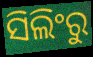
ସିଲିଂରୁ